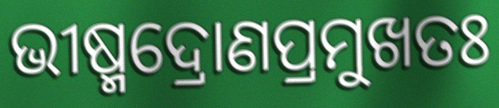
ଭୀଷ୍ମଦ୍ରୋଣପ୍ରମୁଖତଃ